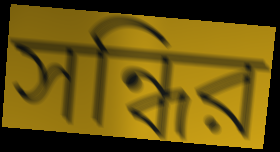
সন্ধির